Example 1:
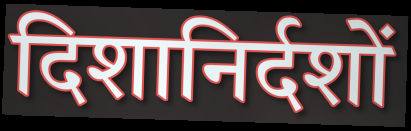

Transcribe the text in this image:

दिशानिर्दशों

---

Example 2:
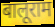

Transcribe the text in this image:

बालूराम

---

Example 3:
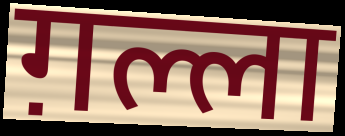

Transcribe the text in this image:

ग़ल्ला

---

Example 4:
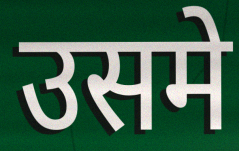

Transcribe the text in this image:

उसमे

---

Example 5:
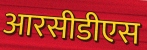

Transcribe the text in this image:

आरसीडीएस